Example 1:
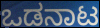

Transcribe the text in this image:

ಒಡನಾಟ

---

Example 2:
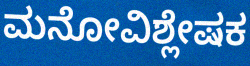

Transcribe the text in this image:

ಮನೋವಿಶ್ಲೇಷಕ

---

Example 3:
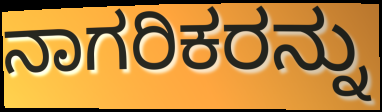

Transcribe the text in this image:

ನಾಗರಿಕರನ್ನು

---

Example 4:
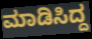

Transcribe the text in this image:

ಮಾಡಿಸಿದ್ದ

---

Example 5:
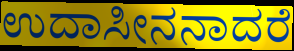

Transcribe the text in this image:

ಉದಾಸೀನನಾದರೆ